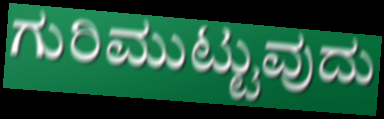
ಗುರಿಮುಟ್ಟುವುದು